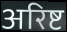
अरिष्ट